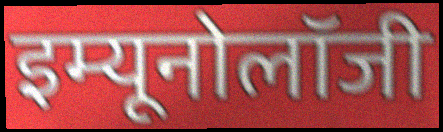
इम्यूनोलॉजी